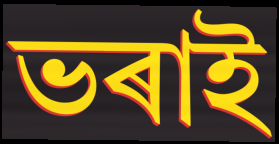
ভৰাই